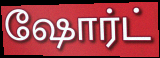
ஷோர்ட்